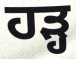
ਹੜ੍ਹ